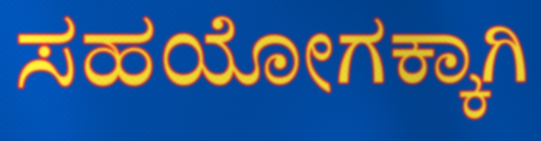
ಸಹಯೋಗಕ್ಕಾಗಿ